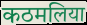
कठमलिया